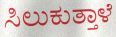
ಸಿಲುಕುತ್ತಾಳೆ